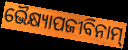
ଭୈକ୍ଷ୍ୟାପଜୀବିନାମ୍